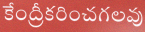
కేంద్రీకరించగలవు